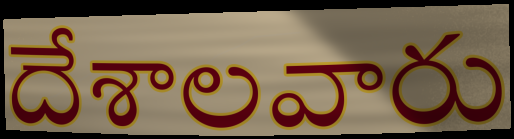
దేశాలవారు